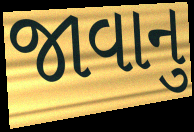
જાવાનુ